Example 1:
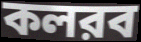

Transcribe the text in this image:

কলরব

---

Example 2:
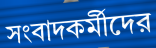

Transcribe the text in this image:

সংবাদকর্মীদের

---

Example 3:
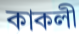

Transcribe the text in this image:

কাকলী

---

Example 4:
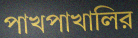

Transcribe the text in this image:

পাখপাখালির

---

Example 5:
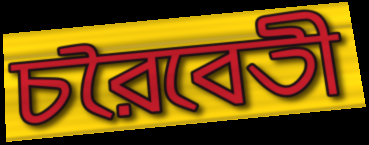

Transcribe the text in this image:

চরৈবেতী